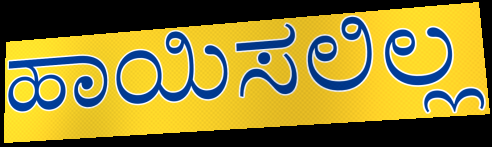
ಹಾಯಿಸಲಿಲ್ಲ